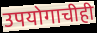
उपयोगाचीही